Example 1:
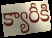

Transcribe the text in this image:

క్యారీకి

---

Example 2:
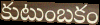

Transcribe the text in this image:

కుటుంబకం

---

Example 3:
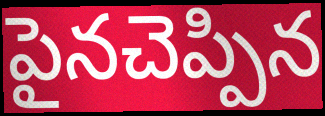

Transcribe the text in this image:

పైనచెప్పిన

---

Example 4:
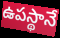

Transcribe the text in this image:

ఉపస్థానే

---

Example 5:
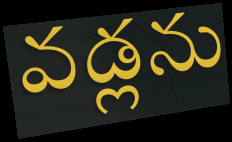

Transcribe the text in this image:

వడ్లను